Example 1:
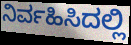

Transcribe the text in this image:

ನಿರ್ವಹಿಸಿದಲ್ಲಿ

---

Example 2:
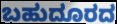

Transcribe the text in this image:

ಬಹುದೂರದ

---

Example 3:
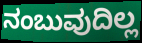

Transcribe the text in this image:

ನಂಬುವುದಿಲ್ಲ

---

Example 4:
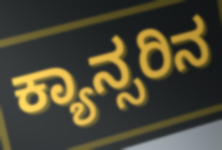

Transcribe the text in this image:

ಕ್ಯಾನ್ಸರಿನ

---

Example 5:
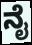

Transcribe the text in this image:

ನೈ